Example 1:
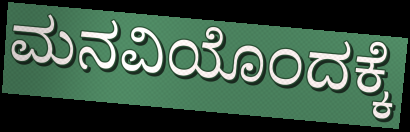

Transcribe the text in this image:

ಮನವಿಯೊಂದಕ್ಕೆ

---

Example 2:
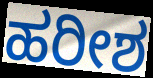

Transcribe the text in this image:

ಹರೀಶ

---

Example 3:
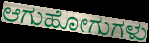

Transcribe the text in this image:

ಆಗುಹೋಗುಗಳು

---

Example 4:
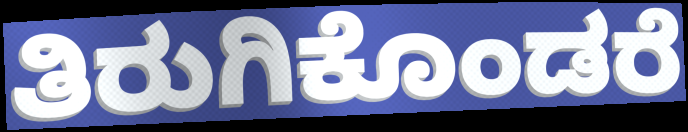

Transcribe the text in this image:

ತಿರುಗಿಕೊಂಡರೆ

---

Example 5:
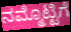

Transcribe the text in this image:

ನಮ್ಮೊಟ್ಟಿಗೆ